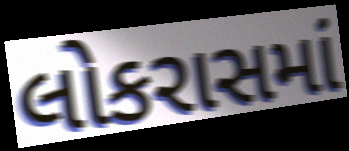
લોકરાસમાં